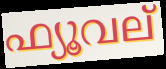
ഫ്യൂവല്